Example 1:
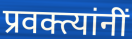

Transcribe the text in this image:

प्रवक्त्यांनीं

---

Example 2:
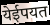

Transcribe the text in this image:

येईपयत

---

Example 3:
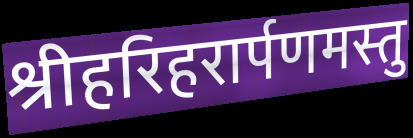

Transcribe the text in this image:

श्रीहरिहरार्पणमस्तु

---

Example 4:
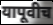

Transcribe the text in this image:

यापूवीच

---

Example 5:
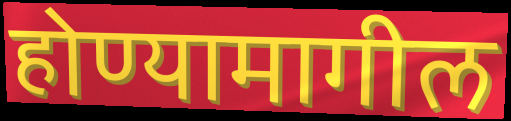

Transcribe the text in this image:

होण्यामागील